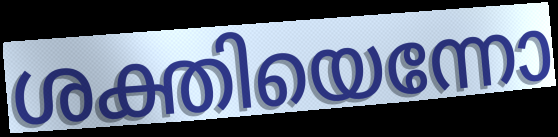
ശക്തിയെന്നോ